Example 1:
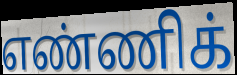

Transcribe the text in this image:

எண்ணிக்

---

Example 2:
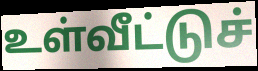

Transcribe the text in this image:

உள்வீட்டுச்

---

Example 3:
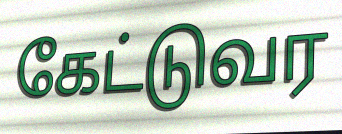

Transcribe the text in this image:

கேட்டுவர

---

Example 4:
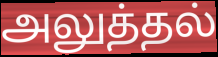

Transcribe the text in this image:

அலுத்தல்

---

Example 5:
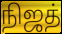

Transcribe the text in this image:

நிஜத்